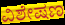
ವಿಶೇಷಣ